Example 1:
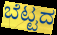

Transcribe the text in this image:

ಬೆಟ್ಟದ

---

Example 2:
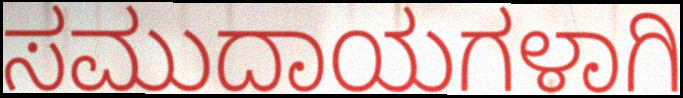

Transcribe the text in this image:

ಸಮುದಾಯಗಳಾಗಿ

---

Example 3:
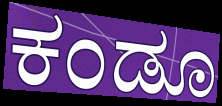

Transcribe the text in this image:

ಕಂಡೂ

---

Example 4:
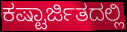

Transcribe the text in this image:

ಕಷ್ಟಾರ್ಜಿತದಲ್ಲಿ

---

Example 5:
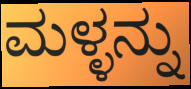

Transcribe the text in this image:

ಮಳ್ಳನ್ನು